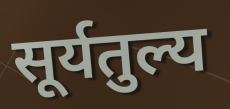
सूर्यतुल्य